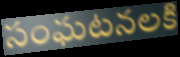
సంఘటనలకి